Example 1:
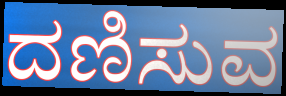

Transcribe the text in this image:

ದಣಿಸುವ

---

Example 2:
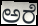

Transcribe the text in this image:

ಅರೆ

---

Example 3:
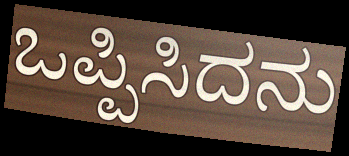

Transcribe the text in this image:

ಒಪ್ಪಿಸಿದನು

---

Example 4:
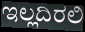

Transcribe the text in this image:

ಇಲ್ಲದಿರಲಿ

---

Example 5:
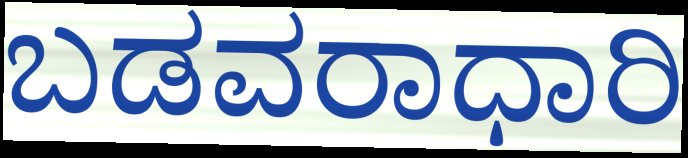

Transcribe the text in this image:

ಬಡವರಾಧಾರಿ